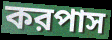
করপাস